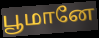
பூமானே